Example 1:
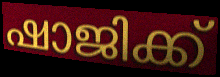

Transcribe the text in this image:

ഷാജിക്ക്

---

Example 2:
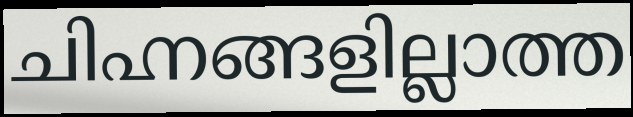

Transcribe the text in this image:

ചിഹ്നങ്ങളില്ലാത്ത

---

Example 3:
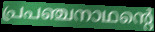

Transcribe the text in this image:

പ്രപഞ്ചനാഥന്റെ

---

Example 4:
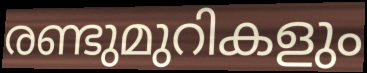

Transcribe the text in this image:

രണ്ടുമുറികളും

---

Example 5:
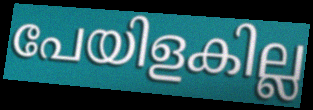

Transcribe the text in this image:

പേയിളകില്ല